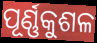
ପୂର୍ଣ୍ଣକୁଶଳ